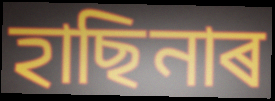
হাছিনাৰ